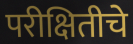
परीक्षितीचे